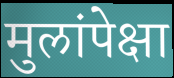
मुलांपेक्षा